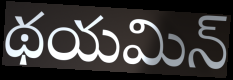
థయమిన్